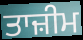
ਤਾਜ਼ੀਮ